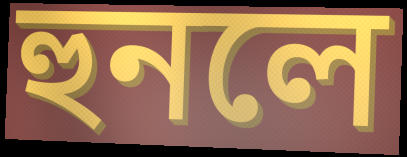
হুনলে